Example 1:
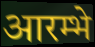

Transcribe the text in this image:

आरम्भे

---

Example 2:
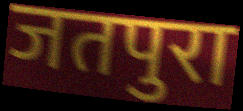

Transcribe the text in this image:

जतपुरा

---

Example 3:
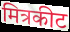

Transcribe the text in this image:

मित्रकीट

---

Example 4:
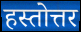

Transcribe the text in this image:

हस्तोत्तर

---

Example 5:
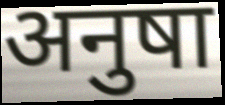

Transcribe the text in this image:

अनुषा